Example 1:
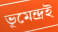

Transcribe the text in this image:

ভূমেন্দ্রই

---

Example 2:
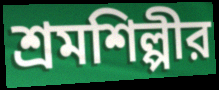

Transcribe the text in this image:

শ্রমশিল্পীর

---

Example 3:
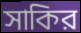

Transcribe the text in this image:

সাকির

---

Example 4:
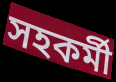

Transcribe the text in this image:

সহকর্মী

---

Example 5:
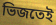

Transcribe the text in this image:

ভিজতেই